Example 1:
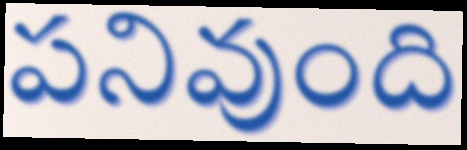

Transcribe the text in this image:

పనివుంది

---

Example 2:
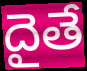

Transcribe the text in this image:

దైతే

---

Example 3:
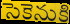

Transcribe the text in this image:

సెకెనుకి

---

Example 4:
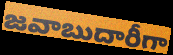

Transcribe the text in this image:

జవాబుదారీగా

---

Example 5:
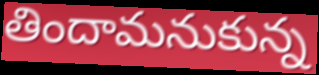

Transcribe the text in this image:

తిందామనుకున్న